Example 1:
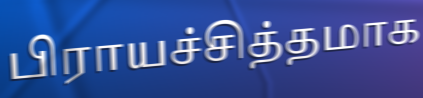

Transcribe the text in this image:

பிராயச்சித்தமாக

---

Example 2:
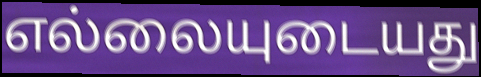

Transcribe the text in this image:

எல்லையுடையது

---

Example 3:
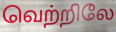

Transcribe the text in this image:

வெற்றிலே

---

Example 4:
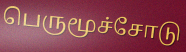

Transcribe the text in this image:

பெருமூச்சோடு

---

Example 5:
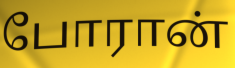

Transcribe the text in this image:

போரான்